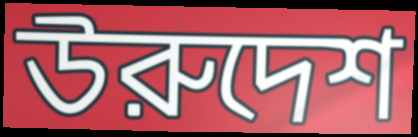
উরুদেশ